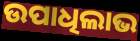
ଉପାଧିଲାଭ